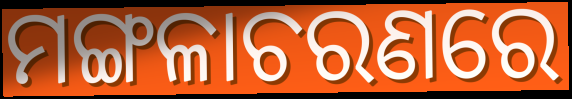
ମଙ୍ଗଳାଚରଣରେ